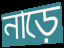
নাড়ে